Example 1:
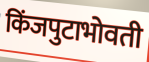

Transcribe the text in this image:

किंजपुटाभोवती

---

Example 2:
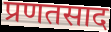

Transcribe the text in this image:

प्रणतसाद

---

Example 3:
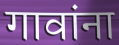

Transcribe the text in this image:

गावांना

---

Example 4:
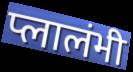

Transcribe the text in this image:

प्लालंभी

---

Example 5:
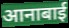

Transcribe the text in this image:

आनाबाई